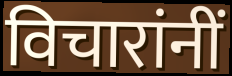
विचारांनीं